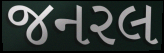
જનરલ